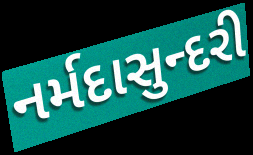
નર્મદાસુન્દરી